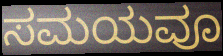
ಸಮಯವೂ